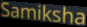
Samiksha